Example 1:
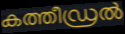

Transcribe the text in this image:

കത്തീഡ്രൽ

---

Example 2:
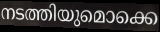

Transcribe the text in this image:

നടത്തിയുമൊക്കെ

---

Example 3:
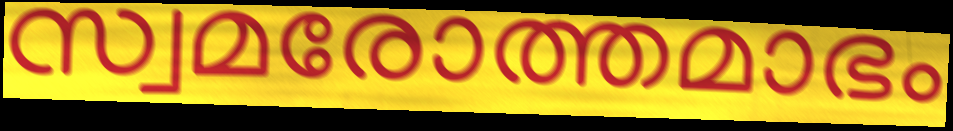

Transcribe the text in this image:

സ്വമരോത്തമാഭം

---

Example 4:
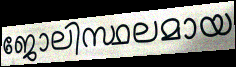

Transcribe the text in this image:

ജോലിസ്ഥലമായ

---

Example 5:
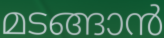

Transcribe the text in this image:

മടങ്ങാൻ